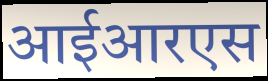
आईआरएस